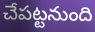
చేపట్టనుంది